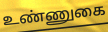
உண்ணுகை